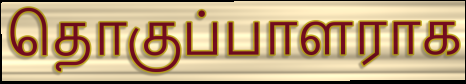
தொகுப்பாளராக